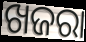
ଖଜରା